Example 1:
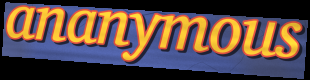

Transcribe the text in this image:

ananymous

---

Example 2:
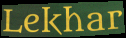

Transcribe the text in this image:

Lekhar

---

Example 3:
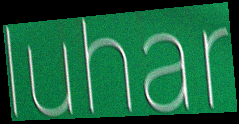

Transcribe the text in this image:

luhar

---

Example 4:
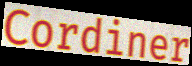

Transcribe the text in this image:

Cordiner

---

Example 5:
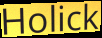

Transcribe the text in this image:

Holick